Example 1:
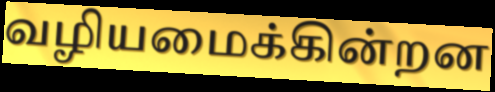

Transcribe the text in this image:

வழியமைக்கின்றன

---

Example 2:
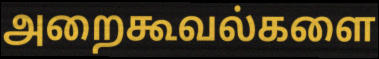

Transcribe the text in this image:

அறைகூவல்களை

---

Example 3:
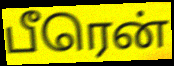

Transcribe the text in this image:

பீரென்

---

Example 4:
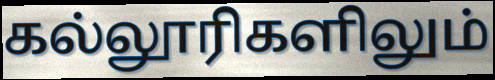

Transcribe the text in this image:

கல்லூரிகளிலும்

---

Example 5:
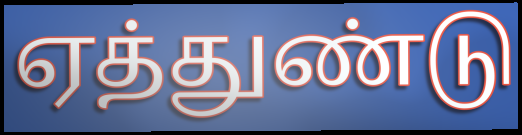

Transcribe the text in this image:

ஏத்துண்டு